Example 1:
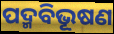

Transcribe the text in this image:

ପଦ୍ମବିଭୂଷଣ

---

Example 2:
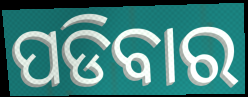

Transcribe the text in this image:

ପଡିବାର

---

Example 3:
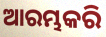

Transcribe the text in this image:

ଆରମ୍ଭକରି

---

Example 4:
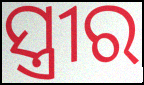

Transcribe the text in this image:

ସ୍ତ୍ରୀର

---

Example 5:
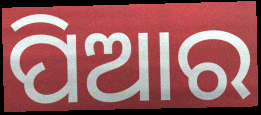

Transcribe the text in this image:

ପିଆର